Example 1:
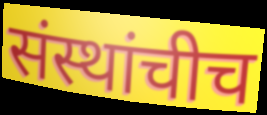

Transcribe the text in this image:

संस्थांचीच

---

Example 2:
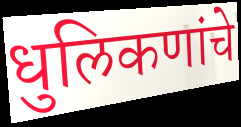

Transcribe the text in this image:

धुलिकणांचे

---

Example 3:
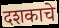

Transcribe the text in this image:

दशकाचे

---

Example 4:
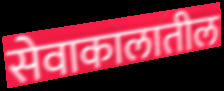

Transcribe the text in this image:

सेवाकालातील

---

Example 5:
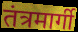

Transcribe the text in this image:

तंत्रमार्गी